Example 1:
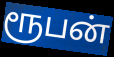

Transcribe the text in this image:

ரூபன்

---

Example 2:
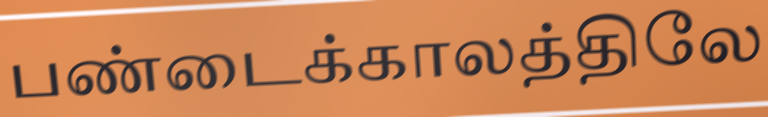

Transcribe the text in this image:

பண்டைக்காலத்திலே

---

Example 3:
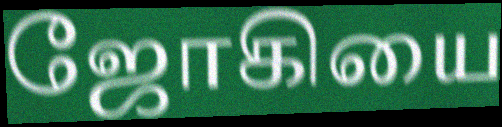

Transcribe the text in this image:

ஜோகியை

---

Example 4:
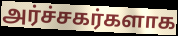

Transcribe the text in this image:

அர்ச்சகர்களாக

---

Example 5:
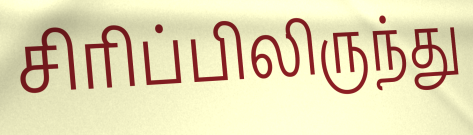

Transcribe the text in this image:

சிரிப்பிலிருந்து